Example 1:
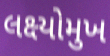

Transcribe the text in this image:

લક્ષ્યોમુખ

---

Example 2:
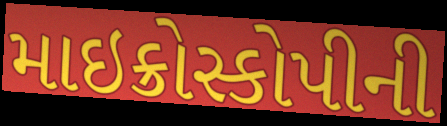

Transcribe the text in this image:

માઇક્રોસ્કોપીની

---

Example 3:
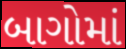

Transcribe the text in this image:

બાગોમાં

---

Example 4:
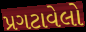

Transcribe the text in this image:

પ્રગટાવેલો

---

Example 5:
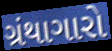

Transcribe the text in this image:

ગ્રંથાગારો